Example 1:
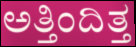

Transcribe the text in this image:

ಅತ್ತಿಂದಿತ್ತ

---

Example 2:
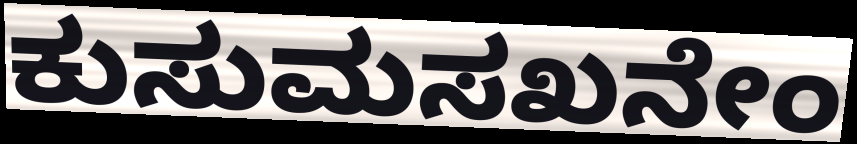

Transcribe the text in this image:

ಕುಸುಮಸಖನೇಂ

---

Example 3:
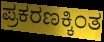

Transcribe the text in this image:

ಪ್ರಕರಣಕ್ಕಿಂತ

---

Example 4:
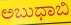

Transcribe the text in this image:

ಅಬುಧಾಬಿ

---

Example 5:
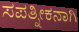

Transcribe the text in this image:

ಸಪತ್ನೀಕನಾಗಿ